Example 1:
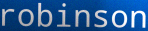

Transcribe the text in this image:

robinson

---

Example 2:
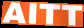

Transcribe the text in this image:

AITT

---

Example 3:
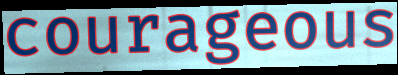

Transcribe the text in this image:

courageous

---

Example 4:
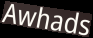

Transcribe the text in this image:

Awhads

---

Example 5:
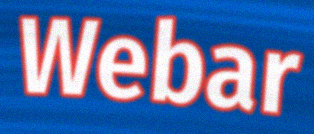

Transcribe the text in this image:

Webar